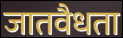
जातवैधता